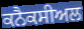
ਕਨੈਕਸੀਅਲ